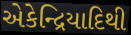
એકેન્દ્રિયાદિથી